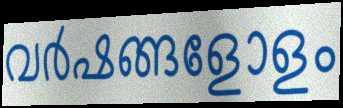
വർഷങ്ങളോളം